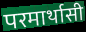
परमार्थासी